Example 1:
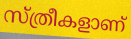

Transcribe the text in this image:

സ്ത്രീകളാണ്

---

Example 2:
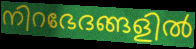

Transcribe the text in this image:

നിറഭേദങ്ങളിൽ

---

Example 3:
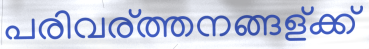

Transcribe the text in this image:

പരിവര്ത്തനങ്ങള്ക്ക്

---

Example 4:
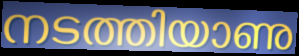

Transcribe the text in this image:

നടത്തിയാണു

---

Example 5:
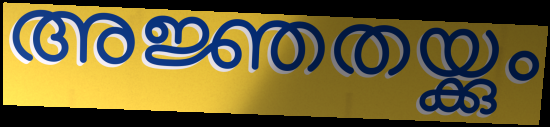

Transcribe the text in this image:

അജ്ഞതയ്ക്കും